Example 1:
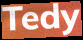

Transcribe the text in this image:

Tedy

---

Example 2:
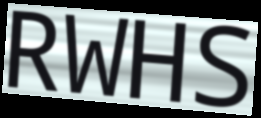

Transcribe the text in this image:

RWHS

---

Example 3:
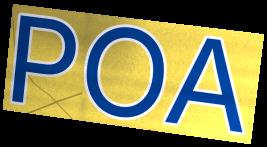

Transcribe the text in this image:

POA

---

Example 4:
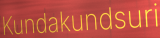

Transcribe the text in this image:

Kundakundsuri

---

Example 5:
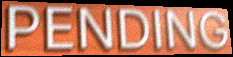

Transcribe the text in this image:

PENDING